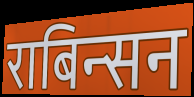
राबिन्सन